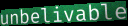
unbelivable